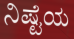
ನಿಷ್ಟೆಯ